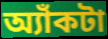
অ্যাঁকটা